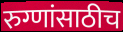
रुग्णांसाठीच